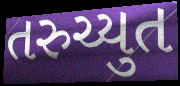
તરુચ્યુત